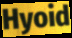
Hyoid